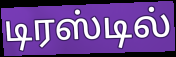
டிரஸ்டில்